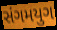
સંગમયુગ